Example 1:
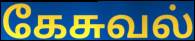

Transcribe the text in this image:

கேசுவல்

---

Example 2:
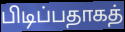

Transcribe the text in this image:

பிடிப்பதாகத்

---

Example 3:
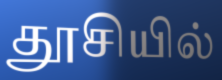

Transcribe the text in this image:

தூசியில்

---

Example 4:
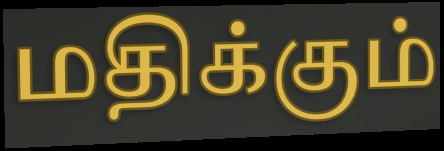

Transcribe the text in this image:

மதிக்கும்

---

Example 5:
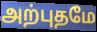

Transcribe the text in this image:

அற்புதமே